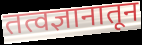
तत्वज्ञानातून